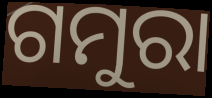
ଗମୁରା